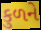
કુળને